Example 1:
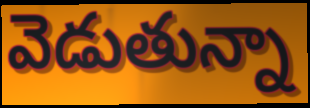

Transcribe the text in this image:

వెడుతున్నా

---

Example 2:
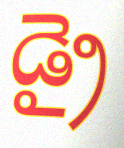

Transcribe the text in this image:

డ్రై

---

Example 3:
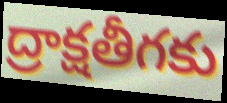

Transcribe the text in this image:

ద్రాక్షతీగకు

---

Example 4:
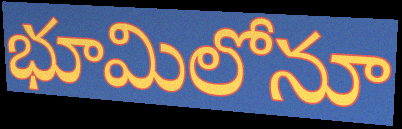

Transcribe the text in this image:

భూమిలోనూ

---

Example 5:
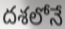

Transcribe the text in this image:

దశలోనే